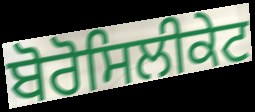
ਬੋਰੋਸਿਲੀਕੇਟ